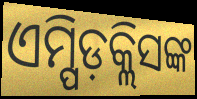
ଏମ୍ପିଡ଼କ୍ଲିସଙ୍କ